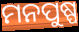
ମନପୁଷ୍ପ